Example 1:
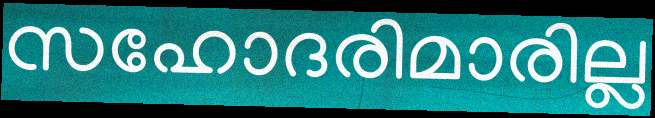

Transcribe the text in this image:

സഹോദരിമാരില്ല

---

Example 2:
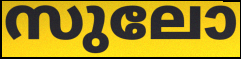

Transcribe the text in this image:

സുലോ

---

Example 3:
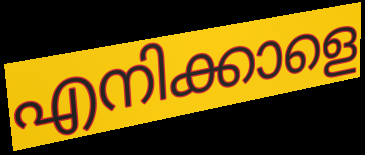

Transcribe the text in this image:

എനിക്കാളെ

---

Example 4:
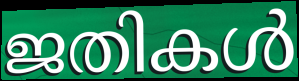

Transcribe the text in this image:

ജതികൾ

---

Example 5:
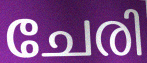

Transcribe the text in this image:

ചേരി